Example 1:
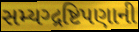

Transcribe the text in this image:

સમ્યગ્દ્રષ્ટિપણાની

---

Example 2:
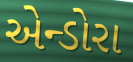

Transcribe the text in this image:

એન્ડોરા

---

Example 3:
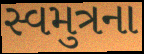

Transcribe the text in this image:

સ્વમુત્રના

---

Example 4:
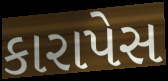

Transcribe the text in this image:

કારાપેસ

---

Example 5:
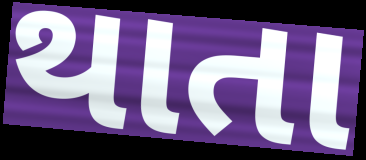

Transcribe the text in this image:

થાતા